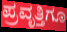
ಪ್ರವೃತ್ತಿಗೂ